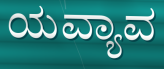
ಯವ್ಯಾವ